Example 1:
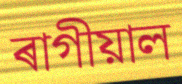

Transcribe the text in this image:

ৰাগীয়াল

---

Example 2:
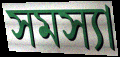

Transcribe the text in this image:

সমস্যা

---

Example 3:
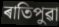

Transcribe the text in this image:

ৰাতিপুৱা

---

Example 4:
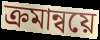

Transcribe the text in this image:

ক্ৰমান্বয়ে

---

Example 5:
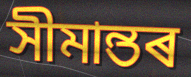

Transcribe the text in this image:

সীমান্তৰ